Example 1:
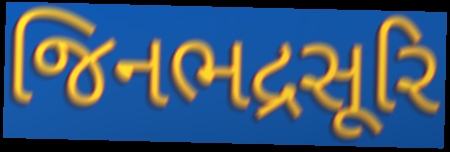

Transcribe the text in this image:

જિનભદ્રસૂરિ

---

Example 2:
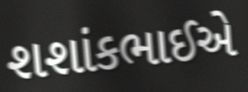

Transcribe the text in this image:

શશાંકભાઈએ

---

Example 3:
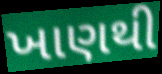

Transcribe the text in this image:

ખાણથી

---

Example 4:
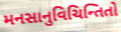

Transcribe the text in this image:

મનસાનુવિચિન્તિતો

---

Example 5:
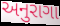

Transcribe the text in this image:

અનુરાગા